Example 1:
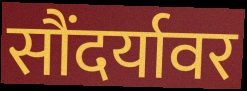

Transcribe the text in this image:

सौंदर्यावर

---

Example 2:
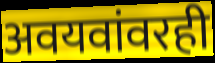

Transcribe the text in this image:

अवयवांवरही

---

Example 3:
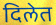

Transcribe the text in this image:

दिलेत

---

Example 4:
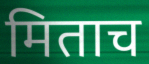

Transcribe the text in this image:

मिताच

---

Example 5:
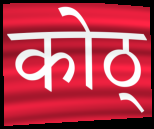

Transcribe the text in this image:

कोठ्